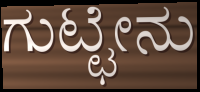
ಗುಟ್ಟೇನು